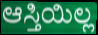
ಆಸ್ತಿಯಿಲ್ಲ